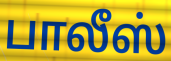
பாலீஸ்